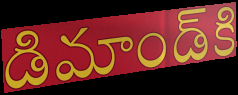
డిమాండ్‌కి